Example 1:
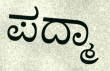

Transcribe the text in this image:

ಪದ್ಮಾ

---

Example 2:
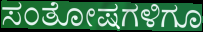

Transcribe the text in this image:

ಸಂತೋಷಗಳಿಗೂ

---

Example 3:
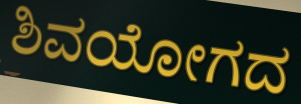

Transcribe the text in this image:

ಶಿವಯೋಗದ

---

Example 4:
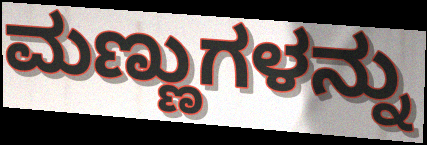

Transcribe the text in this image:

ಮಣ್ಣುಗಳನ್ನು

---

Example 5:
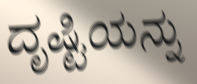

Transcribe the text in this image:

ದೃಷ್ಟಿಯನ್ನು